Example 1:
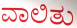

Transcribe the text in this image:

ವಾಲಿತು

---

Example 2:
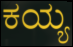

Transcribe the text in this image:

ಕಯ್ಯ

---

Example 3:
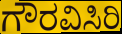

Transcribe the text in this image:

ಗೌರವಿಸಿರಿ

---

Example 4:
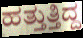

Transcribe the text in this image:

ಹತ್ತುತ್ತಿದ್ದ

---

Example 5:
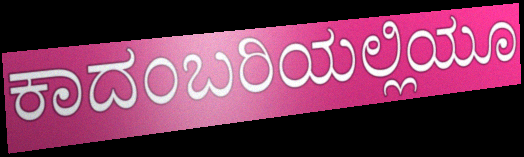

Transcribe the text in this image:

ಕಾದಂಬರಿಯಲ್ಲಿಯೂ